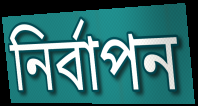
নির্বাপন